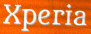
Xperia